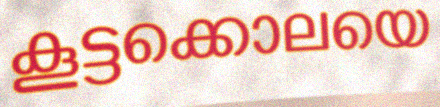
കൂട്ടക്കൊലയെ